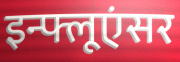
इन्फ्लूएंसर